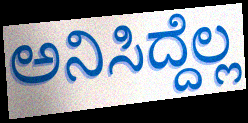
ಅನಿಸಿದ್ದೆಲ್ಲ